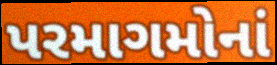
પરમાગમોનાં